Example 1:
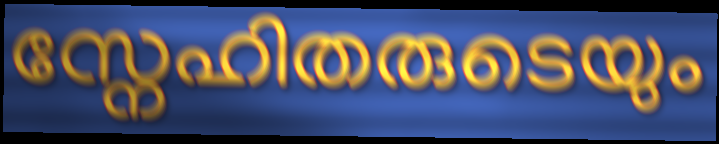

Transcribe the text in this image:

സ്നേഹിതരുടെയും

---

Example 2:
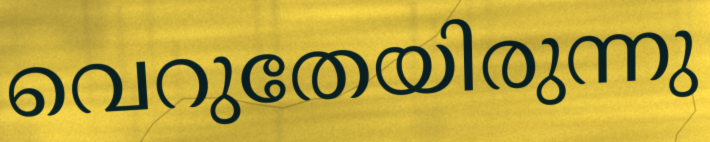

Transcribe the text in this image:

വെറുതേയിരുന്നു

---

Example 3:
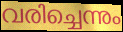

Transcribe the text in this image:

വരിച്ചെന്നും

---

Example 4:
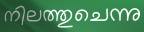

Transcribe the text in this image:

നിലത്തുചെന്നു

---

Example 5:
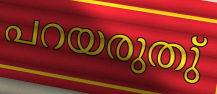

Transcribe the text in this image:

പറയരുതു്